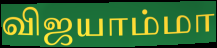
விஜயாம்மா